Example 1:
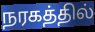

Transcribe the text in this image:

நரகத்தில்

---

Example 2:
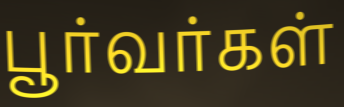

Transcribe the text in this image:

பூர்வர்கள்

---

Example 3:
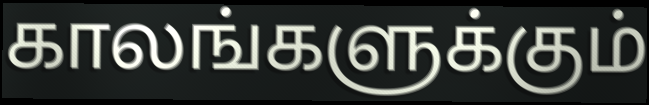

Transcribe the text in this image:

காலங்களுக்கும்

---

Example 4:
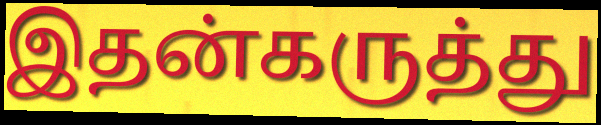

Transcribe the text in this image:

இதன்கருத்து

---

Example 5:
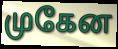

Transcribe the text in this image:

முகேன